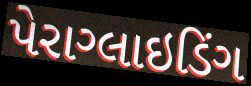
પેરાગ્લાઇડિંગ